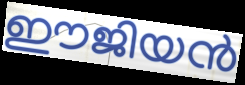
ഈജിയൻ